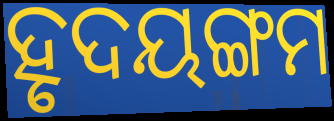
ହୃଦୟଙ୍ଗମ